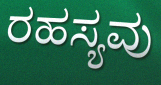
ರಹಸ್ಯವು